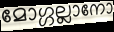
മോഗ്ഗല്ലാനോ